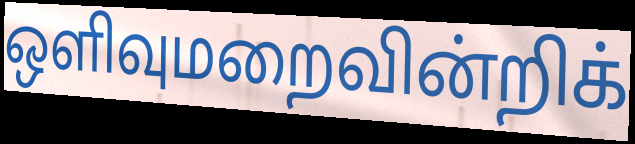
ஒளிவுமறைவின்றிக்